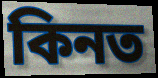
কিনত